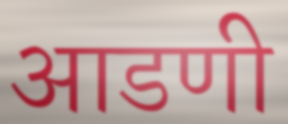
आडणी